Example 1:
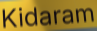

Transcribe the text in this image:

Kidaram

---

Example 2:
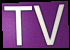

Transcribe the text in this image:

TV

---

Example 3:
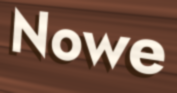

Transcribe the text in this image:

Nowe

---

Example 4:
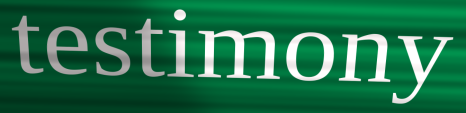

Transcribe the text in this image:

testimony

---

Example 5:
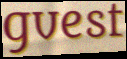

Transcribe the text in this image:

guest